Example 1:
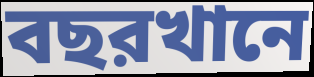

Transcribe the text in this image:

বছরখানে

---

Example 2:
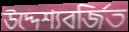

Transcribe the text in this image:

উদ্দেশ্যবর্জিত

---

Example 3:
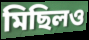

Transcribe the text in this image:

মিছিলও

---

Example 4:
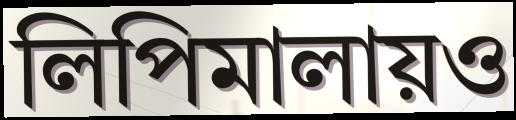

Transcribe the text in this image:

লিপিমালায়ও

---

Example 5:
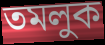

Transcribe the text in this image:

তমলুক